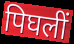
पिघलीं